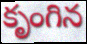
కృంగిన